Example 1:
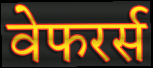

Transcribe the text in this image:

वेफरर्स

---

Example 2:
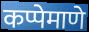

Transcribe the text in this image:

कप्पेमाणे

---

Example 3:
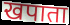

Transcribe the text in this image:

खपाता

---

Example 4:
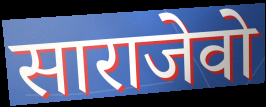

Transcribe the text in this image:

साराजेवो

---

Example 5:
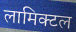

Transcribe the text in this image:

लामिक्टल